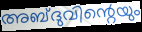
അബ്ദുവിന്റെയും